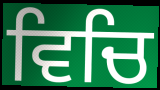
ਵਿਚਿ